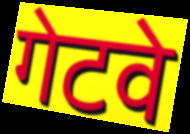
गेटवे